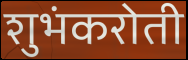
शुभंकरोती